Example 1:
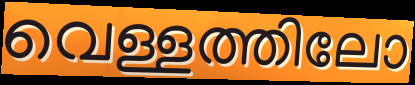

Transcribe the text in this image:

വെള്ളത്തിലോ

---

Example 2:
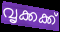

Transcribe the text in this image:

വൃക്കക്ക്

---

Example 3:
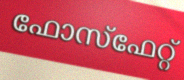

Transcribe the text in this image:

ഫോസ്ഫേറ്റ്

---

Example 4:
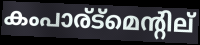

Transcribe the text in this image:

കംപാര്ട്മെന്റില്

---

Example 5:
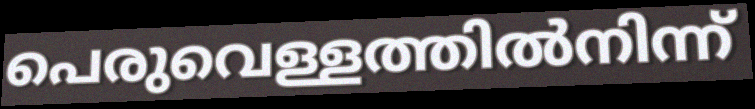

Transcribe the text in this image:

പെരുവെള്ളത്തിൽനിന്ന്